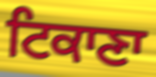
ਟਿਕਾਣਾ